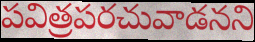
పవిత్రపరచువాడనని